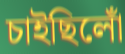
চাইছিলোঁ